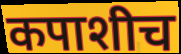
कपाशीच